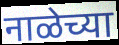
नाळेच्या